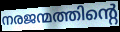
നരജന്മത്തിന്റെ